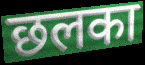
छलका